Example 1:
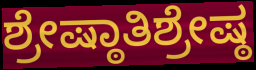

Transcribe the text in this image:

ಶ್ರೇಷ್ಠಾತಿಶ್ರೇಷ್ಠ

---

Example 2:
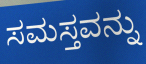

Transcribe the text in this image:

ಸಮಸ್ತವನ್ನು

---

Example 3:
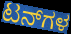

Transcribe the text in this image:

ಟನ್‌ಗಳ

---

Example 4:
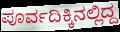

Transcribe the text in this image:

ಪೂರ್ವದಿಕ್ಕಿನಲ್ಲಿದ್ದ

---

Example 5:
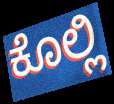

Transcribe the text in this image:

ಕೊಲ್ಲಿ